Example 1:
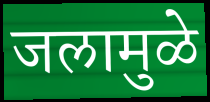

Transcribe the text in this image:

जलामुळे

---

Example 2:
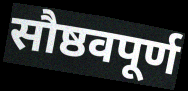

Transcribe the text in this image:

सौष्ठवपूर्ण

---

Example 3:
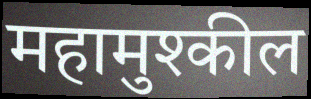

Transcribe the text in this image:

महामुश्कील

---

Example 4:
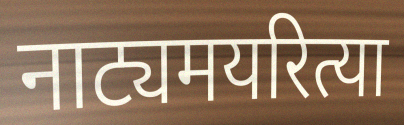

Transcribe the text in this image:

नाट्यमयरित्या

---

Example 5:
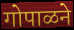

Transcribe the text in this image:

गोपाळने